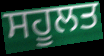
ਸਹੂਲਤ